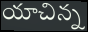
యాచిన్న